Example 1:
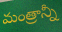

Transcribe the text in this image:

మంత్రాన్నీ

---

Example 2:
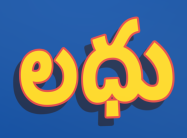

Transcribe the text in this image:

లధు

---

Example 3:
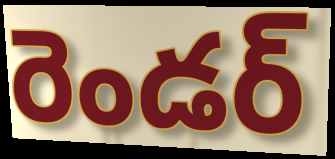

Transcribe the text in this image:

రెండర్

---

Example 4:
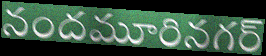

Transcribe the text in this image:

నందమూరినగర్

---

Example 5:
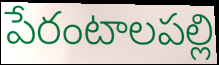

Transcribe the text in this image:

పేరంటాలపల్లి